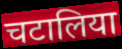
चटालिया